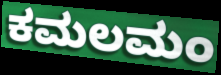
ಕಮಲಮಂ